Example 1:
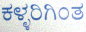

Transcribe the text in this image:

ಕಳ್ಳರಿಗಿಂತ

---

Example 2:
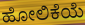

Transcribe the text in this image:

ಹೋಲಿಕೆಯೆ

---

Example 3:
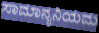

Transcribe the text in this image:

ಸಾಮಾನ್ಯನಿಯಮ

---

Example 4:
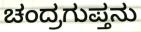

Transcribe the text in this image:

ಚಂದ್ರಗುಪ್ತನು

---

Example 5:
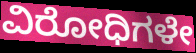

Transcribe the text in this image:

ವಿರೋಧಿಗಳೇ